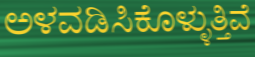
ಅಳವಡಿಸಿಕೊಳ್ಳುತ್ತಿವೆ